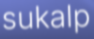
sukalp